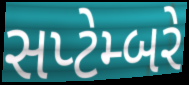
સપ્ટેમ્બરે